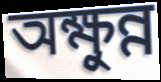
অক্ষুন্ন